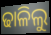
ଢାଳିଲୁ